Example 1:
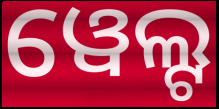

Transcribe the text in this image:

ୱେଲ୍ଟ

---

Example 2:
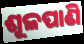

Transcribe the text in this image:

ଶୂଳପାଣି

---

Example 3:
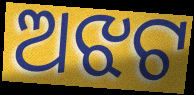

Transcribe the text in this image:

ଅଝଟ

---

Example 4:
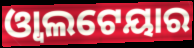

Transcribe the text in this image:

ଓ୍ୱାଲଟେୟାର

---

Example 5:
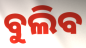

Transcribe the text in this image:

ବୁଲିବ